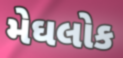
મેઘલોક